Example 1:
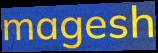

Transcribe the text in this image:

magesh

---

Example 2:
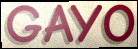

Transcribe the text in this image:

GAYO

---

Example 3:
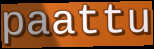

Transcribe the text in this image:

paattu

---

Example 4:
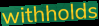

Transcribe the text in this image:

withholds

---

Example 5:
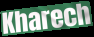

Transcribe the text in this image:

Kharech